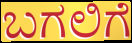
ಬಗಲಿಗೆ